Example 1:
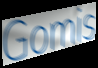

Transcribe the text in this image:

Gomis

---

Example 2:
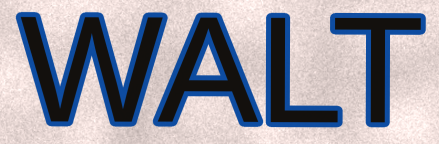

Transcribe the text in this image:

WALT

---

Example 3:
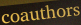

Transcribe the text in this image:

coauthors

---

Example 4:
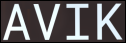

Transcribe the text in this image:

AVIK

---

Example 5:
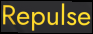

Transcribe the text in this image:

Repulse